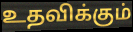
உதவிக்கும்